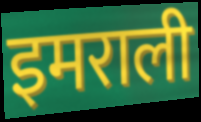
इमराली